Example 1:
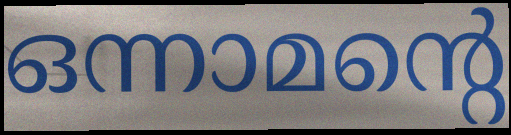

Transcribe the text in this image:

ഒന്നാമന്റെ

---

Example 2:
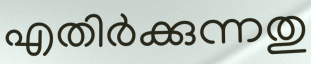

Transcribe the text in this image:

എതിർക്കുന്നതു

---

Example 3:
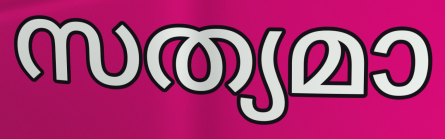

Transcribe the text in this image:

സത്യമാ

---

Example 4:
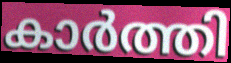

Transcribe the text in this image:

കാർത്തി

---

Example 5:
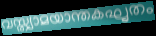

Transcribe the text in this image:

വസ്ത്യാമയാന്തകഘൃതം